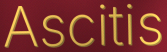
Ascitis